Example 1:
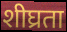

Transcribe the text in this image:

शीघ्रता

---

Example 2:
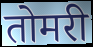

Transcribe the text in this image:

तोमरी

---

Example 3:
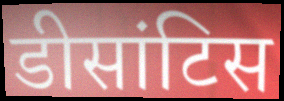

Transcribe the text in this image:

डीसांटिस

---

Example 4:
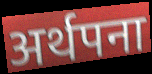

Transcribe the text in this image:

अर्थपना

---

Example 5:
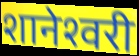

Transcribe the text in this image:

शानेश्वरी